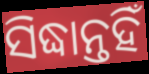
ସିଦ୍ଧାନ୍ତହିଁ